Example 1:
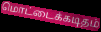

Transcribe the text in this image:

மொட்டைக்கடிதம்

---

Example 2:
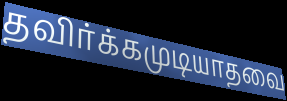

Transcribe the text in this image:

தவிர்க்கமுடியாதவை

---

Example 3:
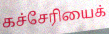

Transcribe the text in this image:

கச்சேரியைக்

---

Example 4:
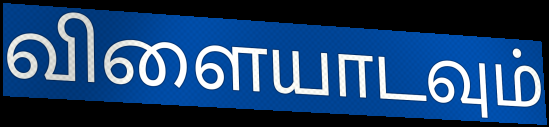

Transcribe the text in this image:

விளையாடவும்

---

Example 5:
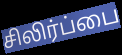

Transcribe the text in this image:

சிலிர்ப்பை